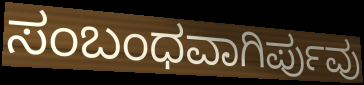
ಸಂಬಂಧವಾಗಿರ್ಪುವು